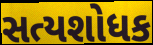
સત્યશોધક